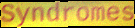
Syndromes